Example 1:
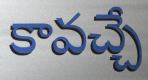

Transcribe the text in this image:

కావచ్చే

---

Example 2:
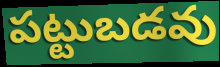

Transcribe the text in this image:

పట్టుబడవు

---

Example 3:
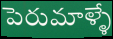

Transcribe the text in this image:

పెరుమాళ్ళే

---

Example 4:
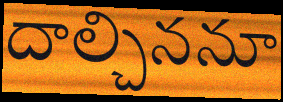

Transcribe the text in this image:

దాల్చిననూ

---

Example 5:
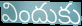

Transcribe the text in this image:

విందుకు